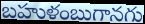
బహుళంబుగానగు